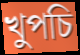
খুপচি